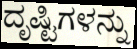
ದೃಷ್ಟಿಗಳನ್ನು